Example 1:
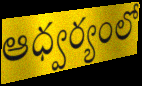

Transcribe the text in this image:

ఆధ్వర్యంలో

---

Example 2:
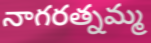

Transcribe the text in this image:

నాగరత్నమ్మ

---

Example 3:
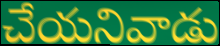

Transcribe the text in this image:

చేయనివాడు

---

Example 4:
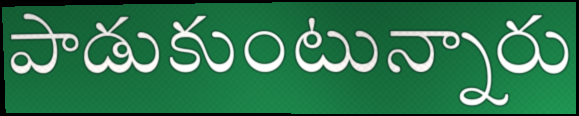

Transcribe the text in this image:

పాడుకుంటున్నారు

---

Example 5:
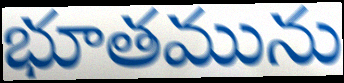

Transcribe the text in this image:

భూతమును